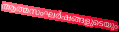
ആത്മസംഘർഷങ്ങളുടെയും